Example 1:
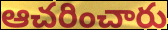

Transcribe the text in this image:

ఆచరించారు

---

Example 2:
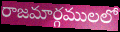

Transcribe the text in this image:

రాజమార్గములలో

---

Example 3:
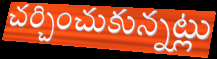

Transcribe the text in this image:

చర్చించుకున్నట్లు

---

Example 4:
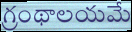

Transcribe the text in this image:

గ్రంథాలయమే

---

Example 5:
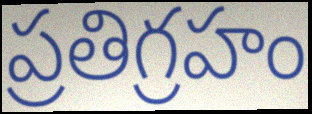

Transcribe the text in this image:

ప్రతిగ్రహం